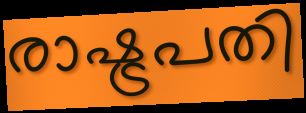
രാഷ്ട്രപതി